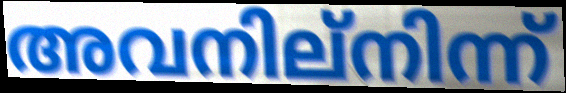
അവനില്നിന്ന്